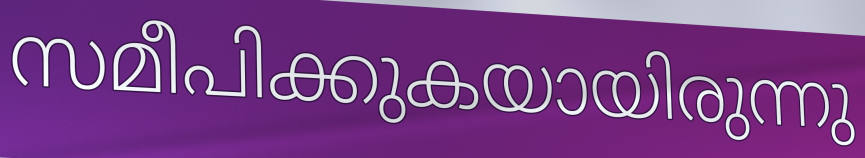
സമീപിക്കുകയായിരുന്നു